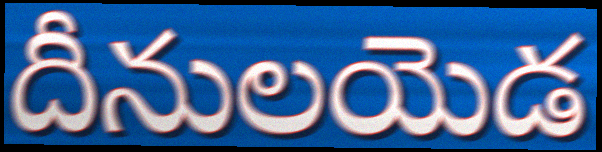
దీనులయెడ